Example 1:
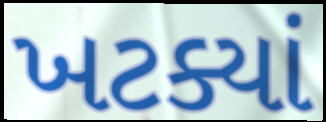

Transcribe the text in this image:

ખટક્યાં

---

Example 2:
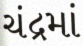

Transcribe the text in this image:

ચંદ્રમાં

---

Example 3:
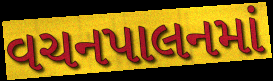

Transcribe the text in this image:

વચનપાલનમાં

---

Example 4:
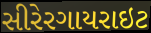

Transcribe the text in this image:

સીરેરગાયરાઇટ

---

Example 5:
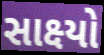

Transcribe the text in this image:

સાક્ષ્યો